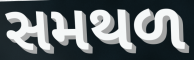
સમથળ